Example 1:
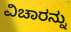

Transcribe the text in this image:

ವಿಚಾರನ್ನು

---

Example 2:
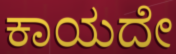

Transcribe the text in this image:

ಕಾಯದೇ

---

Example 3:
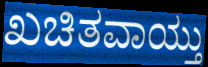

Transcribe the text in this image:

ಖಚಿತವಾಯ್ತು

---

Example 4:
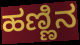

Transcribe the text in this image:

ಹಣ್ಣಿನ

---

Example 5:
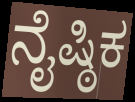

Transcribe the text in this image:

ನೈಷ್ಠಿಕ